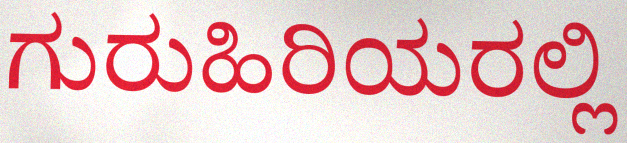
ಗುರುಹಿರಿಯರಲ್ಲಿ